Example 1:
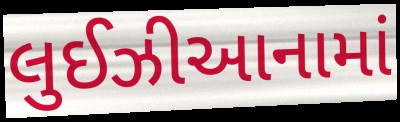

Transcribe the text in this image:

લુઈઝીઆનામાં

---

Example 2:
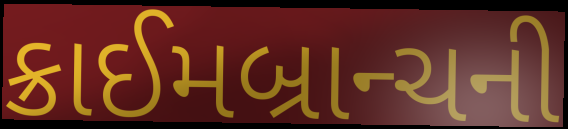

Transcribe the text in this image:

ક્રાઈમબ્રાન્ચની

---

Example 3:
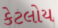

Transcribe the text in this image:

કેટલોય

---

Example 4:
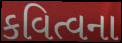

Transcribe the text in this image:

કવિત્વના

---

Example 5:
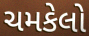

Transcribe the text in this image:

ચમકેલો